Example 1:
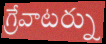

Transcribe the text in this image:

గ్రేవాటర్ను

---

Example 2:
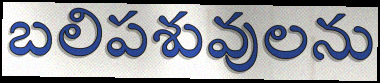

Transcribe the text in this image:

బలిపశువులను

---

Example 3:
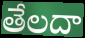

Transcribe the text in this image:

తేలదా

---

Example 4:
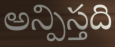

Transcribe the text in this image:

అన్పిస్తది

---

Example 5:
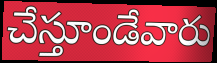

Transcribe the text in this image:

చేస్తూండేవారు